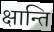
क्षान्ति